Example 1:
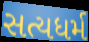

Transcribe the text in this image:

સત્યધર્મ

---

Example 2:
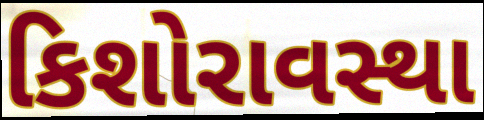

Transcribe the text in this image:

કિશોરાવસ્થા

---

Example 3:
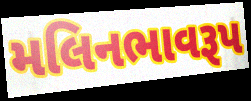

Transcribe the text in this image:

મલિનભાવરૂપ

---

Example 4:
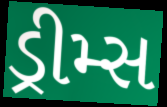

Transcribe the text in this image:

ડ્રીમ્સ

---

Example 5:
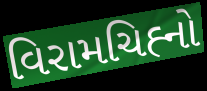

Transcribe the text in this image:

વિરામચિહ્‍નો